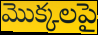
మొక్కలపై